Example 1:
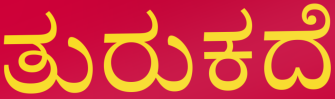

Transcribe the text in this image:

ತುರುಕದೆ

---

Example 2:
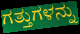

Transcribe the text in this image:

ಗತ್ತುಗಳನ್ನು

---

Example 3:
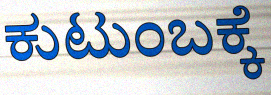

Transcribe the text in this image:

ಕುಟುಂಬಕ್ಕೆ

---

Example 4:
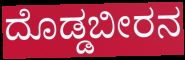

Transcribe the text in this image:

ದೊಡ್ಡಬೀರನ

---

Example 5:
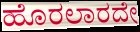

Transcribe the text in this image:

ಹೊರಲಾರದೇ